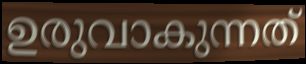
ഉരുവാകുന്നത്